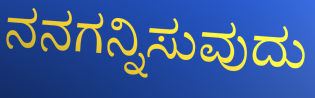
ನನಗನ್ನಿಸುವುದು